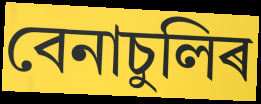
বেনাচুলিৰ